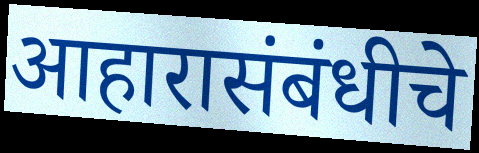
आहारासंबंधीचे